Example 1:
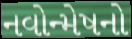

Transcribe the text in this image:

નવોન્મેષનો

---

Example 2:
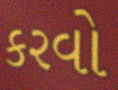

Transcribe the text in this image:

કરવો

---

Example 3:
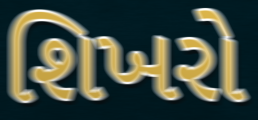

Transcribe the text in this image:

શિખરો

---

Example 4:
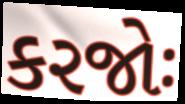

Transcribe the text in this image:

કરજોઃ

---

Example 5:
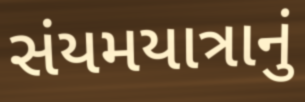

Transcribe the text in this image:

સંયમયાત્રાનું